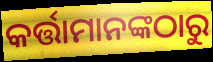
କର୍ତ୍ତାମାନଙ୍କଠାରୁ